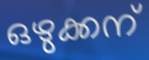
ഒഴുക്കന്